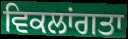
ਵਿਕਲਾਂਗਤਾ